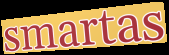
smartas